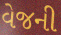
વેજની